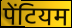
पेंटियम